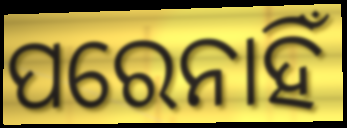
ପରେନାହିଁ